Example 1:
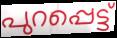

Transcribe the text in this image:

പുറപ്പെട്ട്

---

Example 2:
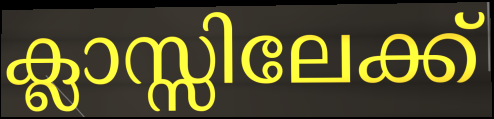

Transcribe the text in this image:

ക്ലാസ്സിലേക്ക്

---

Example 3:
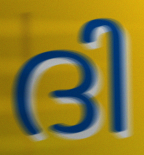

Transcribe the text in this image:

ദി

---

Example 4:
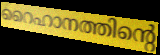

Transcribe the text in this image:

റൈഹാനത്തിന്റെ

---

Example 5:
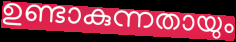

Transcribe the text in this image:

ഉണ്ടാകുന്നതായും